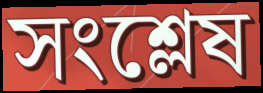
সংশ্লেষ